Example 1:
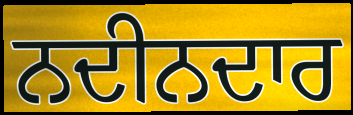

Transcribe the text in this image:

ਨਦੀਨਦਾਰ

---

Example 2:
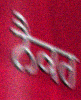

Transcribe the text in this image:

ਨੈਕਰ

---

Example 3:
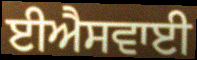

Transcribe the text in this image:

ਈਐਸਵਾਈ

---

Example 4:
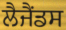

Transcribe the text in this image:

ਲੈਜੈਂਡਸ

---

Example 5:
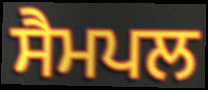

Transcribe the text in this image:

ਸੈਮਪਲ